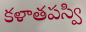
కళాతపస్వి